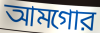
আমগোর